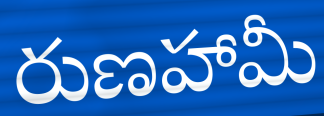
రుణహామీ